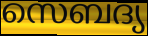
സെബദ്യ